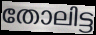
തോലിട്ട